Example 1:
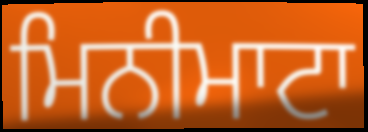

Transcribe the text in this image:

ਮਿਨੀਮਾਟਾ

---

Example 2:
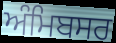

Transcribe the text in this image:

ਅੰਮਿਬਸਰ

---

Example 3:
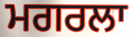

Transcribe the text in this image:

ਮਗਰਲਾ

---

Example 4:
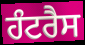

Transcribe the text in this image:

ਹੰਟਰੈਸ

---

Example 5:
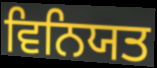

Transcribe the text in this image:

ਵਿਨਿਯਤ